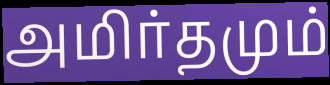
அமிர்தமும்